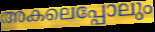
അകലെപ്പോലും